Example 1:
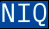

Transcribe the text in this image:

NIQ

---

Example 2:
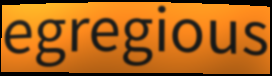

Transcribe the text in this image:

egregious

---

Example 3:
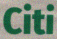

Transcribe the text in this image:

Citi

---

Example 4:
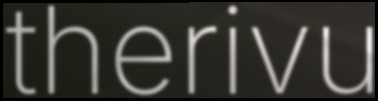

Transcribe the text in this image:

therivu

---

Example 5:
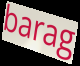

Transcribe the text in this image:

barag